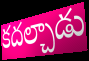
కదల్చాడు